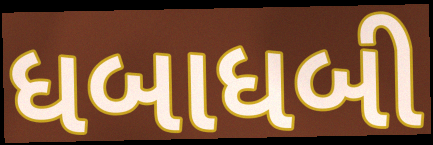
ધબાધબી